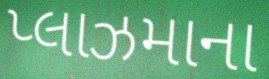
પ્લાઝમાના